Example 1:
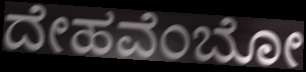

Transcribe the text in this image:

ದೇಹವೆಂಬೋ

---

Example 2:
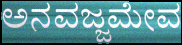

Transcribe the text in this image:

ಅನವಜ್ಜಮೇವ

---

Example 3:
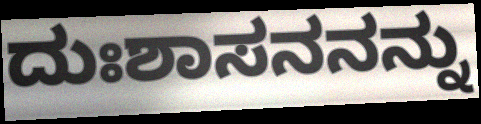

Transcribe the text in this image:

ದುಃಶಾಸನನನ್ನು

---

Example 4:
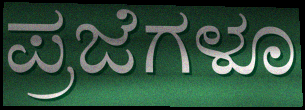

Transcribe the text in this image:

ಪ್ರಜೆಗಳೂ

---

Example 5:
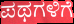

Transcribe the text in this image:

ಪಥಗಳಿಗೆ